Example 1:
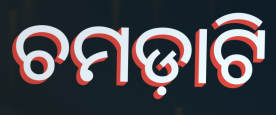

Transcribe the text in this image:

ଚମଡ଼ାଟି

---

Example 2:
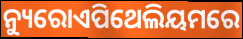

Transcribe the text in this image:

ନ୍ୟୁରୋଏପିଥେଲିୟମରେ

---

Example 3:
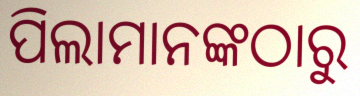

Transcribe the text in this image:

ପିଲାମାନଙ୍କଠାରୁ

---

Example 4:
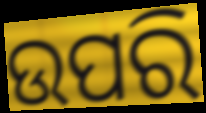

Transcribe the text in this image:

ଉପରି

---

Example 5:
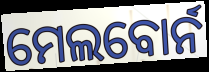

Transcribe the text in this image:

ମେଲବୋର୍ନ